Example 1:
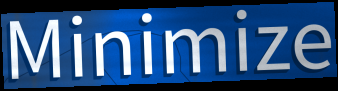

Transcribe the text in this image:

Minimize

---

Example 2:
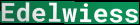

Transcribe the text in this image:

Edelwiess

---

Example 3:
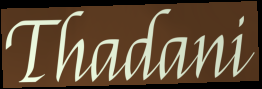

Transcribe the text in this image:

Thadani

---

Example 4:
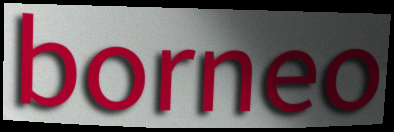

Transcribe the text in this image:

borneo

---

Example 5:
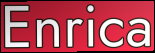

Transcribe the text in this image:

Enrica